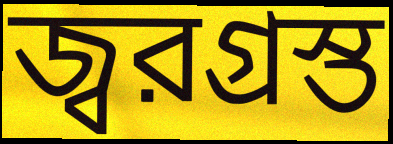
জ্বরগ্রস্ত